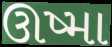
ઊષ્મા